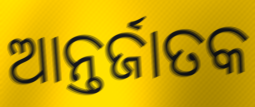
ଆନ୍ତର୍ଜାତକ